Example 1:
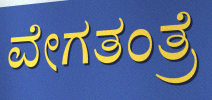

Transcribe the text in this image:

ವೇಗತಂತ್ರೆ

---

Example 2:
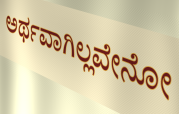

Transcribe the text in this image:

ಅರ್ಥವಾಗಿಲ್ಲವೇನೋ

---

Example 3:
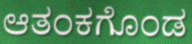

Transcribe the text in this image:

ಆತಂಕಗೊಂಡ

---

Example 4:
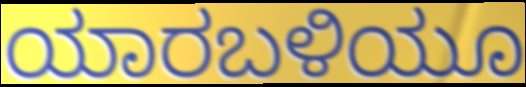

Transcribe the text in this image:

ಯಾರಬಳಿಯೂ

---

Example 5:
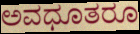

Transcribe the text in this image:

ಅವಧೂತರೂ